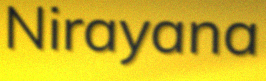
Nirayana